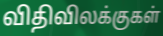
விதிவிலக்குகள்